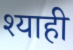
श्याही